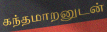
கந்தமாறனுடன்